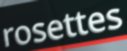
rosettes